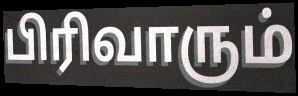
பிரிவாரும்